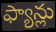
ఫ్యాన్లు